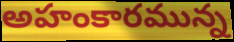
అహంకారమున్న